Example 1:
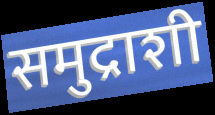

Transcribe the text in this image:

समुद्राशी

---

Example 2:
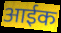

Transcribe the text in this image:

आईक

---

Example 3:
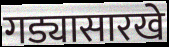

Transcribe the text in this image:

गड्यासारखे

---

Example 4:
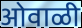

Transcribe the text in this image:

ओवाळी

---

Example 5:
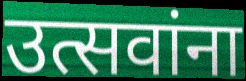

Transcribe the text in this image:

उत्सवांना